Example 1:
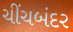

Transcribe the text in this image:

ચીંચબંદર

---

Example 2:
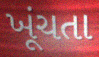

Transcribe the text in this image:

ખૂંચતા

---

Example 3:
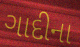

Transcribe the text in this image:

ગાદીના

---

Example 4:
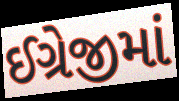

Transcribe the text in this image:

ઈગ્રેજીમાં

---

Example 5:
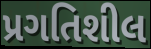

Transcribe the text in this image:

પ્રગતિશીલ